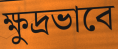
ক্ষুদ্রভাবে